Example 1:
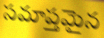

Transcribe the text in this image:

సమాప్తమైన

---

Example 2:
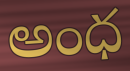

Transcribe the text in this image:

అంధ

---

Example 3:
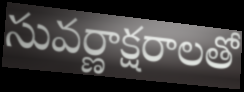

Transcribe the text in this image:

సువర్ణాక్షరాలతో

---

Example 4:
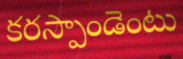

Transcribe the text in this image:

కరస్పాండెంటు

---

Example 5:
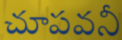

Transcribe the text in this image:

చూపవనీ